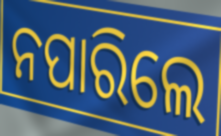
ନପାରିଲେ